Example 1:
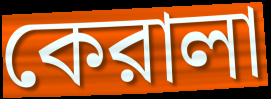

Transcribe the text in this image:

কেরালা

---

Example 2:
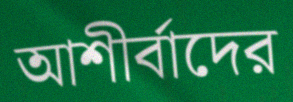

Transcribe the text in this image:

আশীর্বাদের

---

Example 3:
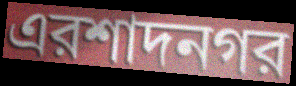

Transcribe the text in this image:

এরশাদনগর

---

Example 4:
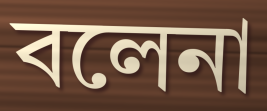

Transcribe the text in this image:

বলেনা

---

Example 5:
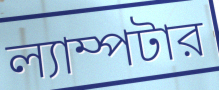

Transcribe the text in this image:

ল্যাম্পটার